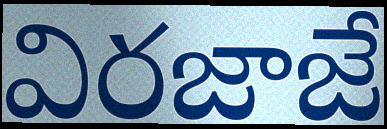
విరజాజే